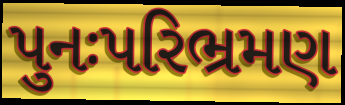
પુનઃપરિભ્રમણ